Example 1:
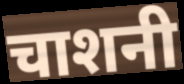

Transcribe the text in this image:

चाशनी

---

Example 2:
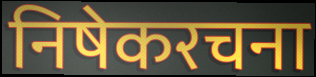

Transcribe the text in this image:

निषेकरचना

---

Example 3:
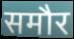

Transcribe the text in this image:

समौर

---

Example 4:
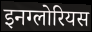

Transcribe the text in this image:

इनग्लोरियस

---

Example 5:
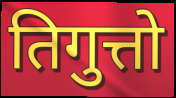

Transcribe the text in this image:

तिगुत्तो